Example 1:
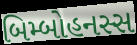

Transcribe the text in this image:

બિમ્બોહનસ્સ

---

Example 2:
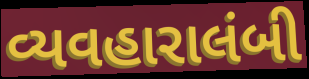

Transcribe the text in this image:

વ્યવહારાલંબી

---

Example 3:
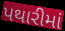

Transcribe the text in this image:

પથારીમાં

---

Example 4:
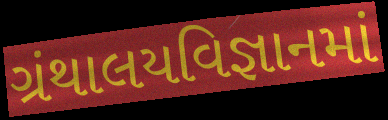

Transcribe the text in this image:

ગ્રંથાલયવિજ્ઞાનમાં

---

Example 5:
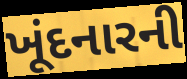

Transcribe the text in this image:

ખૂંદનારની